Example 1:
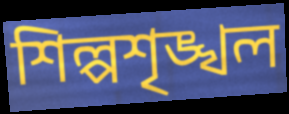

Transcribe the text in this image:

শিল্পশৃঙ্খল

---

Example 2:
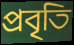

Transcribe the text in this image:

প্রবৃতি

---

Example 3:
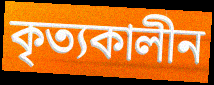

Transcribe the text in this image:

কৃত্যকালীন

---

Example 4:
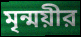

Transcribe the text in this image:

মৃন্ময়ীর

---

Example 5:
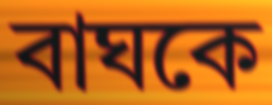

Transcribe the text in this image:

বাঘকে